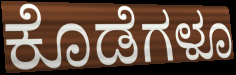
ಕೊಡೆಗಳೂ